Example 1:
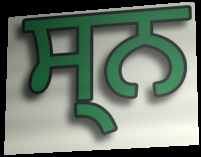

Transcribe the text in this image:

ਸ੍ਨ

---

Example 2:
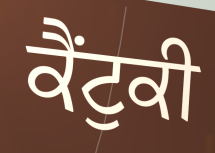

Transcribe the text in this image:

ਕੈਂਟੁਕੀ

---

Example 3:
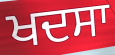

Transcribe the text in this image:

ਖਦਸਾ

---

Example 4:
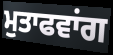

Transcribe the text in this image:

ਮੁਤਾਫਵਾਂਗ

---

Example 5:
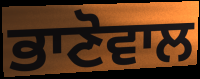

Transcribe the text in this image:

ਭਾਣੋਵਾਲ